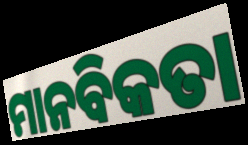
ମାନବିକତା